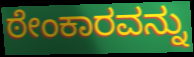
ಠೇಂಕಾರವನ್ನು